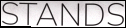
STANDS